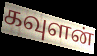
கவுளன்